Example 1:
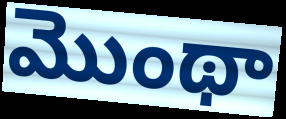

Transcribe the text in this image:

మొంథా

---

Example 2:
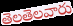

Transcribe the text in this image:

తెలతెలవారు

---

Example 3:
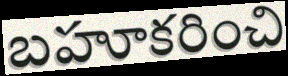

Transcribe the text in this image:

బహూకరించి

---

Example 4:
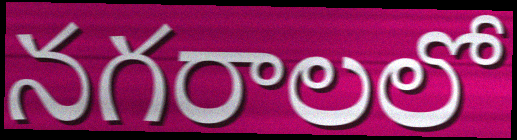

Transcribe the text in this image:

నగరాలలో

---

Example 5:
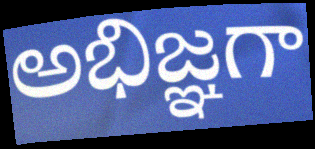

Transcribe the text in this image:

అభిజ్ఞగా